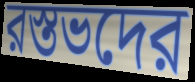
রস্তভদের